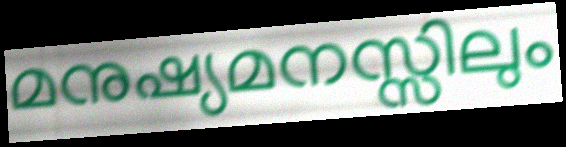
മനുഷ്യമനസ്സിലും